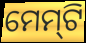
ମେମ୍‍ଟି